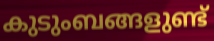
കുടുംബങ്ങളുണ്ട്